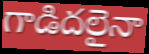
గాడిదలైనా